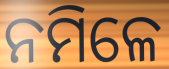
ନମିଳେ